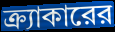
ক্র্যাকারের